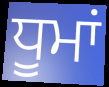
ਧੂਮਾਂ